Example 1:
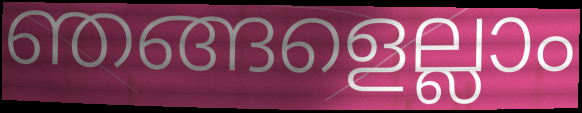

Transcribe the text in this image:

ഞങ്ങളെല്ലാം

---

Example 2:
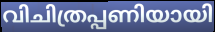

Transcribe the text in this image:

വിചിത്രപ്പണിയായി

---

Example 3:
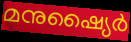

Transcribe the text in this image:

മനുഷ്യൈർ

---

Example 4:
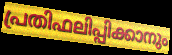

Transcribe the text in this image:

പ്രതിഫലിപ്പിക്കാനും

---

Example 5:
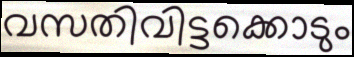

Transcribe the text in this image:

വസതിവിട്ടക്കൊടും